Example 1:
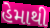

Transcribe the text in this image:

હેમાથી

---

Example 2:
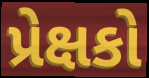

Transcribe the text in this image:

પ્રેક્ષકો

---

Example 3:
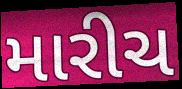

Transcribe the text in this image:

મારીચ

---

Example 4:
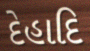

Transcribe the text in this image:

દેહાદિ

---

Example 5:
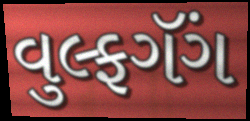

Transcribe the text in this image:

વુલ્ફગૅંગ